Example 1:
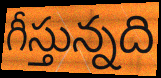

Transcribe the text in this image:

గీస్తున్నది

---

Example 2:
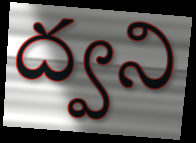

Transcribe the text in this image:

ద్వని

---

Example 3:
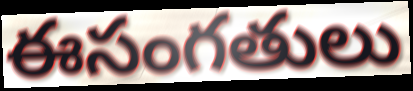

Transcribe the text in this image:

ఈసంగతులు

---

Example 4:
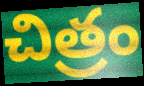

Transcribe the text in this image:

చిత్రం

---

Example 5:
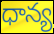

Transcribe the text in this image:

ధాన్య